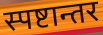
स्पष्टान्तर